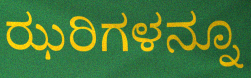
ಝರಿಗಳನ್ನೂ